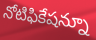
నోటిఫికేషన్నూ